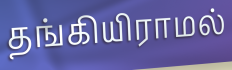
தங்கியிராமல்